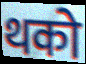
थको